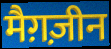
मैग़ज़ीन